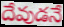
దేవుడనే